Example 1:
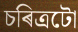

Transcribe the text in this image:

চৰিত্ৰটো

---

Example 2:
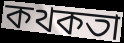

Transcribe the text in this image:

কথকতা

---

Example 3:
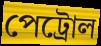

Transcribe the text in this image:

পেট্ৰোল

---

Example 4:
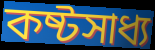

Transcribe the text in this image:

কষ্টসাধ্য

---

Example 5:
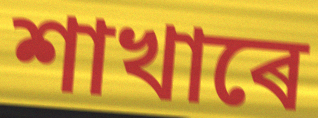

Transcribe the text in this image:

শাখাৰে